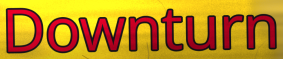
Downturn